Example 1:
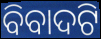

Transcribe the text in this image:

ବିବାଦଟି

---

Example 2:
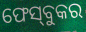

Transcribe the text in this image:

ଫେସ୍‌ବୁକର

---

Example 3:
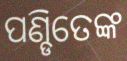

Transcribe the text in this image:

ପଣ୍ଡିତେଙ୍କ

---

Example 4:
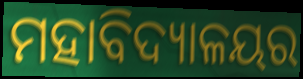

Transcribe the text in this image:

ମହାବିଦ୍ୟାଳୟର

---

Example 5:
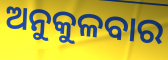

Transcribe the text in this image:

ଅନୁକୁଳବାର